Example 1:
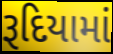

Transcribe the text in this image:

રૂદિયામાં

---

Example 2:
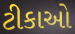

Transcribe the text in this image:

ટીકાઓ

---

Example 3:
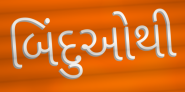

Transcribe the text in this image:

બિંદુઓથી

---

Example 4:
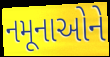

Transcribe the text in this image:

નમૂનાઓને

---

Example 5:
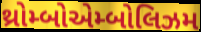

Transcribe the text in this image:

થ્રોમ્બોએમ્બોલિઝમ